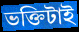
ভক্তিটাই